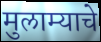
मुलाम्याचे